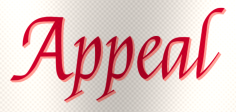
Appeal